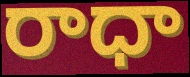
రాధా